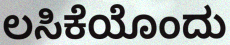
ಲಸಿಕೆಯೊಂದು